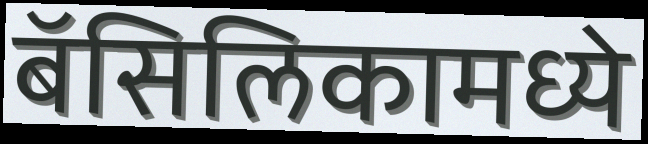
बॅसिलिकामध्ये